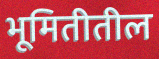
भूमितीतील